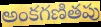
అంకగణితపు